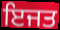
ਇਜਤ